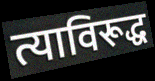
त्याविरूद्ध